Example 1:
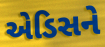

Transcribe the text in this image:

એડિસને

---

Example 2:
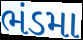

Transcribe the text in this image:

ભંડમા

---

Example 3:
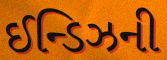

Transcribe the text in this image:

ઈન્ડિઝની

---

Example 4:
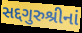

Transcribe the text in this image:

સદ્દગુરુશ્રીનાં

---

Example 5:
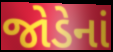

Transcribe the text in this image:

જોડેનાં